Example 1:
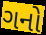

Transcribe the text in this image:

ગનો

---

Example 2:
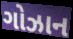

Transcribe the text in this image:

ગોઝાન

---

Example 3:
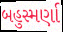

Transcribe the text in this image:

બહુસ્મર્ણા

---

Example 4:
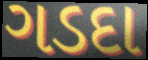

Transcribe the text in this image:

ગડદા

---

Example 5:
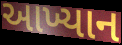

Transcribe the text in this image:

આખ્યાન